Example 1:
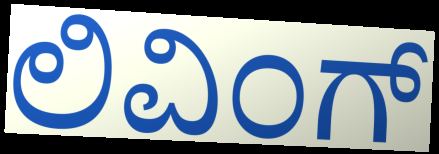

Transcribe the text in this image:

ಲಿವಿಂಗ್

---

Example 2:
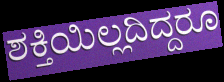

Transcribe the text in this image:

ಶಕ್ತಿಯಿಲ್ಲದಿದ್ದರೂ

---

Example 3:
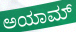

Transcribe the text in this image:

ಅಯಾಮ್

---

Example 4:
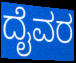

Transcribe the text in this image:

ದೈವರ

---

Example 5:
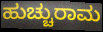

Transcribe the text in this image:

ಹುಚ್ಚುರಾಮ